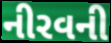
નીરવની